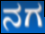
ನಗ